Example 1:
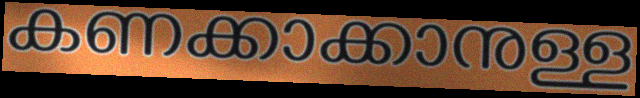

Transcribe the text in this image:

കണക്കാക്കാനുള്ള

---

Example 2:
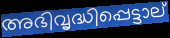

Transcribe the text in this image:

അഭിവൃദ്ധിപ്പെട്ടാല്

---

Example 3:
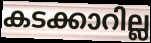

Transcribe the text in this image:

കടക്കാറില്ല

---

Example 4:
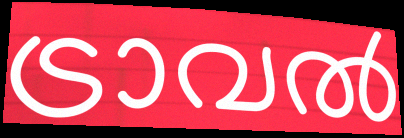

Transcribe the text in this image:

ട്രാവൽ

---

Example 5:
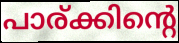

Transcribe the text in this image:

പാര്ക്കിന്റെ